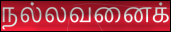
நல்லவனைக்